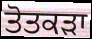
ਤੋਤਕੜਾ